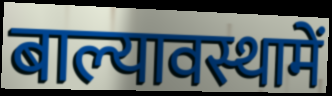
बाल्यावस्थामें